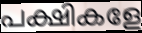
പക്ഷികളേ